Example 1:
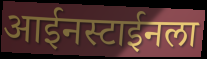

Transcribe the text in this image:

आईनस्टाईनला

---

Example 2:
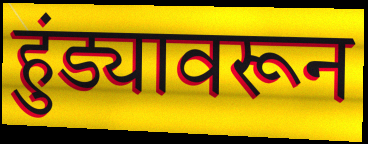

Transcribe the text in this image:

हुंड्यावरून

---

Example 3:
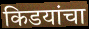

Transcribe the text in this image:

किडयांचा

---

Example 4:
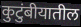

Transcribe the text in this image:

कुटुंबीयातील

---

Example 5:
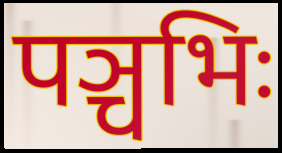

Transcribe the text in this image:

पञ्चभिः